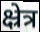
क्ष्रेत्र